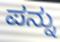
ಪನ್ನು